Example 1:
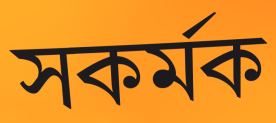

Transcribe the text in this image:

সকর্মক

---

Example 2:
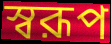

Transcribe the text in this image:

স্বরূপ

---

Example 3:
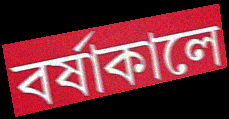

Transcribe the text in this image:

বর্ষাকালে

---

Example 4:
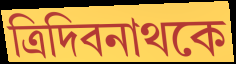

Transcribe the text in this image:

ত্রিদিবনাথকে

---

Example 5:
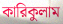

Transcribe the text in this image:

কারিকুলাম